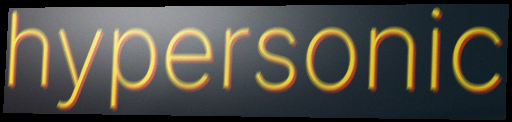
hypersonic